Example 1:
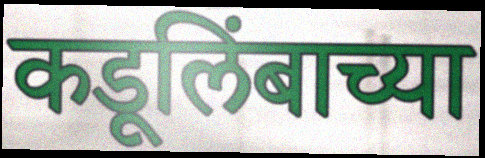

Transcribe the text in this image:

कडूलिंबाच्या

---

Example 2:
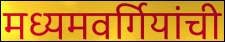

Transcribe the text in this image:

मध्यमवर्गियांची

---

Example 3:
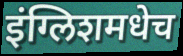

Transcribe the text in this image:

इंग्लिशमधेच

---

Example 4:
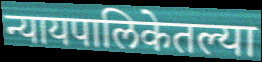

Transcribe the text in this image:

न्यायपालिकेतल्या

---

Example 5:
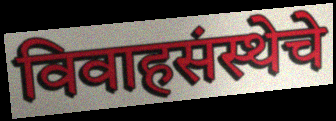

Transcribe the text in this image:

विवाहसंस्थेचे